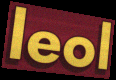
leol